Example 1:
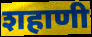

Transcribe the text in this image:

शहाणी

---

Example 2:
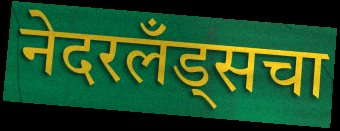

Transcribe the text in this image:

नेदरलँड्सचा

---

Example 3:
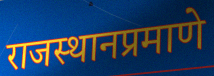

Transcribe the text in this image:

राजस्थानप्रमाणे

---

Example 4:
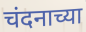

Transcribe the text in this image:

चंदनाच्या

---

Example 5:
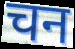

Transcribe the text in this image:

चन